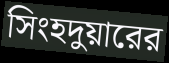
সিংহদুয়ারের